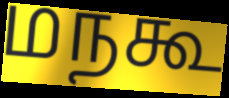
மநகூ